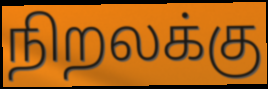
நிறலக்கு